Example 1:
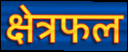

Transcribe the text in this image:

क्षेत्रफल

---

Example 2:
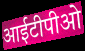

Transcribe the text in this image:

आईटीपीओ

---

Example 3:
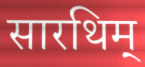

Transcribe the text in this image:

सारथिम्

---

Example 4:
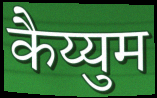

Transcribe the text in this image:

कैय्युम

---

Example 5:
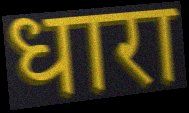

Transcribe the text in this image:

धारा